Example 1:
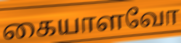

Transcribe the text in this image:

கையாளவோ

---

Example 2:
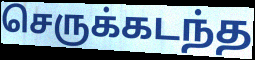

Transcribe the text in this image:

செருக்கடந்த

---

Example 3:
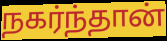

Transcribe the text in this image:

நகர்ந்தான்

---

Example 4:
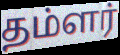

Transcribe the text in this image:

தம்ளர்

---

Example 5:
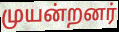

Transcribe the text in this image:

முயன்றனர்